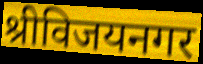
श्रीविजयनगर